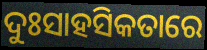
ଦୁଃସାହସିକତାରେ